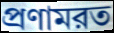
প্রণামরত